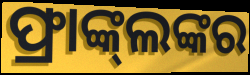
ଫ୍ରାଙ୍କ୍‌ଲଙ୍କର